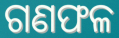
ଗଣଫଳ